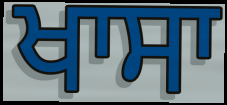
ਖਾਸਾ